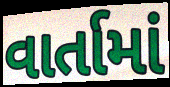
વાર્તામાં